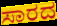
ಸಾರದ